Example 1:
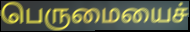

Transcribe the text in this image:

பெருமையைச்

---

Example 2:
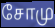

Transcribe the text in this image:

சோமு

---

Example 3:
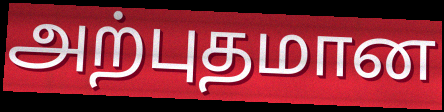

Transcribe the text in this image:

அற்புதமான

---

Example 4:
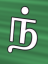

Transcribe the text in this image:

ந்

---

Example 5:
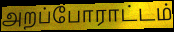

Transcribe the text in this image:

அறப்போராட்டம்